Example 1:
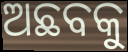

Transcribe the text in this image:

ଅଛବକୁ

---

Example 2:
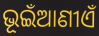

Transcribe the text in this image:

ଭୂଇଁଆଣୀଏଁ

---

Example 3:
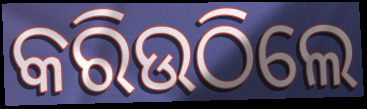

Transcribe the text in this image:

କରିଉଠିଲେ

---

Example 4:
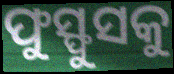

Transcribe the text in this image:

ଫୁସ୍ଫୁସକୁ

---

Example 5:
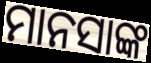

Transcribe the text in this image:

ମାନସାଙ୍କ